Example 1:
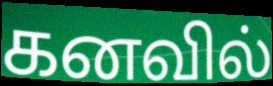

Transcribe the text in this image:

கனவில்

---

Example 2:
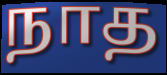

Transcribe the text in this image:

நாத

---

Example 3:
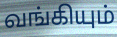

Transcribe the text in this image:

வங்கியும்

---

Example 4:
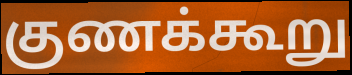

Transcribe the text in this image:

குணக்கூறு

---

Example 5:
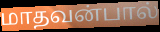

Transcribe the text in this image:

மாதவன்பால்